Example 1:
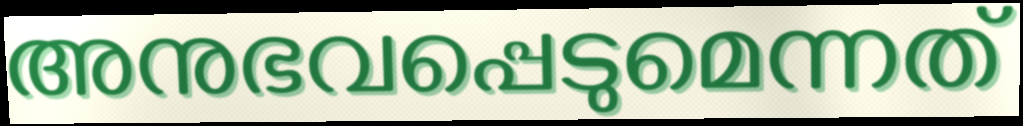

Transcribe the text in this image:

അനുഭവപ്പെടുമെന്നത്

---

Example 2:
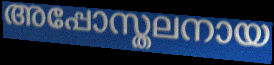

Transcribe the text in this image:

അപ്പോസ്തലനായ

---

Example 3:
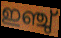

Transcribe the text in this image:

ഇഞ്ചു്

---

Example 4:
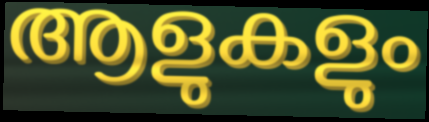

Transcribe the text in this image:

ആളുകളും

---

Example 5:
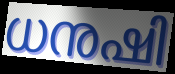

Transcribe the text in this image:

ധനുഷി